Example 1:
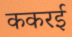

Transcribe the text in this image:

ककरई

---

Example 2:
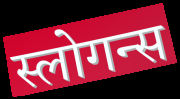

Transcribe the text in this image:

स्लोगन्स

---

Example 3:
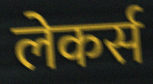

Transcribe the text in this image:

लेकर्स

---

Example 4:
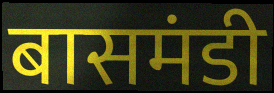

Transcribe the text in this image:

बासमंडी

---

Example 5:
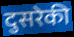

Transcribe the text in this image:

दुसरेकी